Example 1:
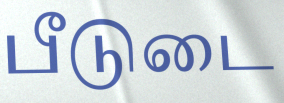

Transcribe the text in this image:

பீடுடை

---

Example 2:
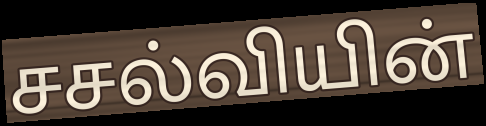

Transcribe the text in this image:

சசல்வியின்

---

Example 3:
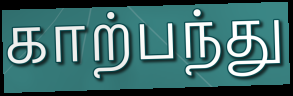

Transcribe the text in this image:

காற்பந்து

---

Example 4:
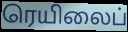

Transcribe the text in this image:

ரெயிலைப்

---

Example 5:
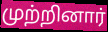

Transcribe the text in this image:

முற்றினார்